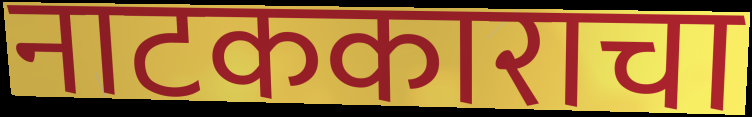
नाटककाराचा